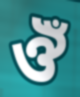
ঔঁ